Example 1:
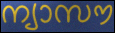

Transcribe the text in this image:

ന്യാസൗ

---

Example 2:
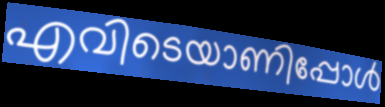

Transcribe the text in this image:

എവിടെയാണിപ്പോൾ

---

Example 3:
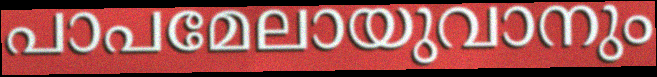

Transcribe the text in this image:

പാപമേലായുവാനും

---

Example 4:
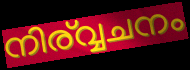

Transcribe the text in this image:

നിര്വ്വചനം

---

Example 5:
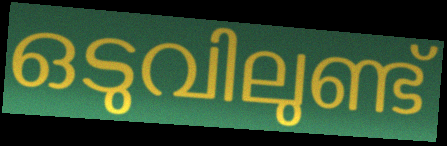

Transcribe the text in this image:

ഒടുവിലുണ്ട്